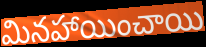
మినహాయించాయి